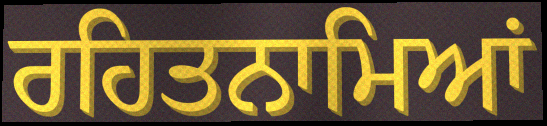
ਰਹਿਤਨਾਮਿਆਂ